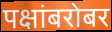
पक्षांबरोबर